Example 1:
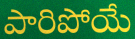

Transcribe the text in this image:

పారిపోయే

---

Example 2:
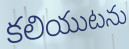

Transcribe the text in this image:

కలియుటను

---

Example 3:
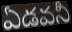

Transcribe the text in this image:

ఏడవనీ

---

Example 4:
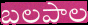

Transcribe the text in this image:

బలపాల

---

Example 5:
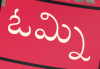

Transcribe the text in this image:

ఓమ్ని